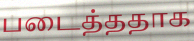
படைத்ததாக